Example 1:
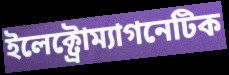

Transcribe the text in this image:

ইলেক্ট্রোম্যাগনেটিক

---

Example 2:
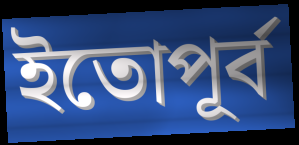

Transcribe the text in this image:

ইতোপূর্ব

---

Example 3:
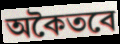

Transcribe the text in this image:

অকৈতবে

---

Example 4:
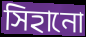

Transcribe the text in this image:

সিহানো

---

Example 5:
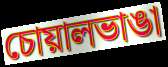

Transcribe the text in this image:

চোয়ালভাঙা